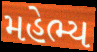
મહેભ્ય